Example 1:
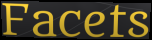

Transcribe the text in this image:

Facets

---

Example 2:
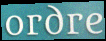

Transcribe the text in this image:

ordre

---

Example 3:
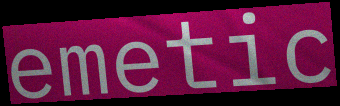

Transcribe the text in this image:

emetic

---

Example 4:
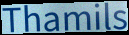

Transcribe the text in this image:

Thamils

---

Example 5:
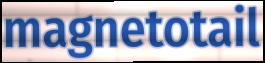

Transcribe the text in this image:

magnetotail